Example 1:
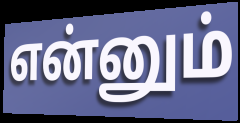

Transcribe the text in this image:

என்னும்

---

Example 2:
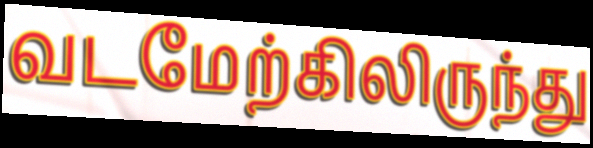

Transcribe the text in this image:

வடமேற்கிலிருந்து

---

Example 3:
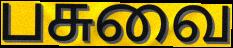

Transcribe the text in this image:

பசுவை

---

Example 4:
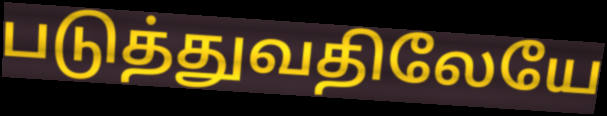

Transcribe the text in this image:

படுத்துவதிலேயே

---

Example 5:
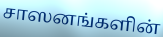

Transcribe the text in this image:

சாஸனங்களின்